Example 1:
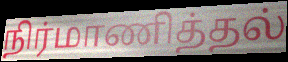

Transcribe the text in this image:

நிர்மாணித்தல்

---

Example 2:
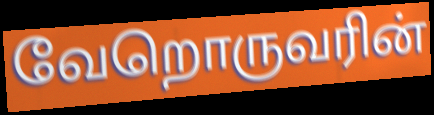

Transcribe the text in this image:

வேறொருவரின்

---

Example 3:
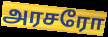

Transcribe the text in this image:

அரசரோ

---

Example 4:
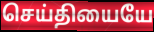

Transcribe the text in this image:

செய்தியையே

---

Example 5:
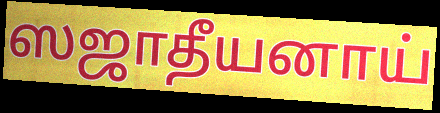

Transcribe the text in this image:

ஸஜாதீயனாய்